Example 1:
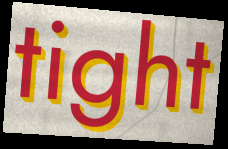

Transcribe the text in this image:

tight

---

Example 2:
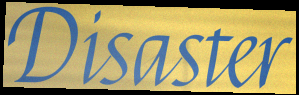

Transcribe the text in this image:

Disaster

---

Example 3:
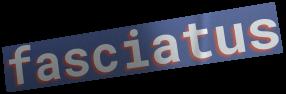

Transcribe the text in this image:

fasciatus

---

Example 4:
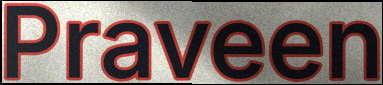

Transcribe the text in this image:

Praveen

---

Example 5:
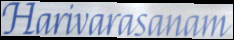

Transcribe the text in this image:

Harivarasanam